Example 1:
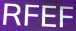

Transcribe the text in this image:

RFEF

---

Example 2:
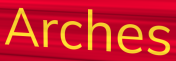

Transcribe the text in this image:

Arches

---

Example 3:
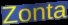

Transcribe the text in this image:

Zonta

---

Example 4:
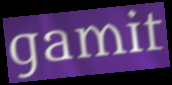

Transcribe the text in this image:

gamit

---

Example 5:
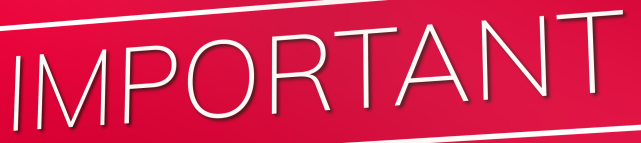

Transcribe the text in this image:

IMPORTANT